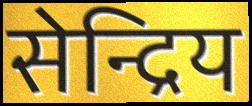
सेन्द्रिय